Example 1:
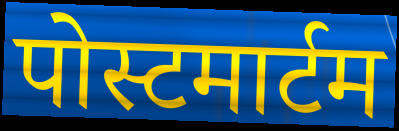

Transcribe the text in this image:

पोस्टमार्टम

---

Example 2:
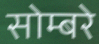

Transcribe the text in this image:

सोम्बरे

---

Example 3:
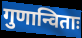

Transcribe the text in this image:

गुणान्विताः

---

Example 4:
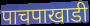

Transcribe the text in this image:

पाचपाखाडी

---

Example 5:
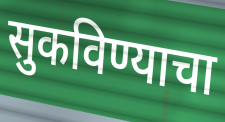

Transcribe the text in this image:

सुकविण्याचा